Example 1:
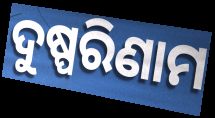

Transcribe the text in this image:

ଦୁଷ୍ପରିଣାମ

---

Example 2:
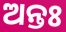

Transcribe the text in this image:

ଅନ୍ତଃ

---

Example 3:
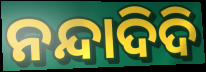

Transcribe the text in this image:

ନନ୍ଦାଦିଦି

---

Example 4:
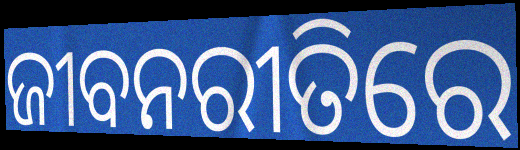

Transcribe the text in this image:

ଜୀବନରୀତିରେ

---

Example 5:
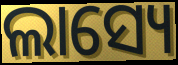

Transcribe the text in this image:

ଲାସ୍ୟେ